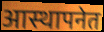
आस्थापनेत